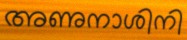
അണുനാശിനി